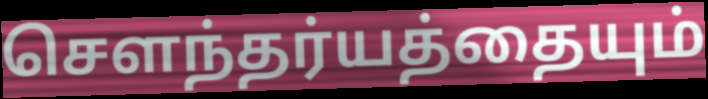
சௌந்தர்யத்தையும்